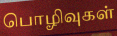
பொழிவுகள்